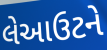
લેઆઉટને